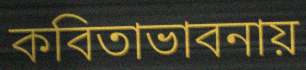
কবিতাভাবনায়